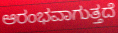
ಆರಂಭವಾಗುತ್ತದೆ